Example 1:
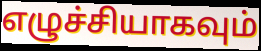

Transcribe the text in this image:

எழுச்சியாகவும்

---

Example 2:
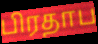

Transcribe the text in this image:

பிரதாப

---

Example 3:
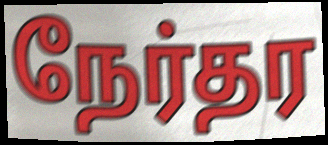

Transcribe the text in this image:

நேர்தர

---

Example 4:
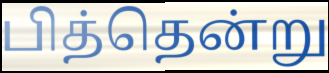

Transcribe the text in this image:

பித்தென்று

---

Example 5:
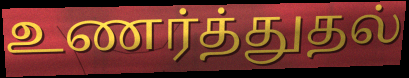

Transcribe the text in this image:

உணர்த்துதல்